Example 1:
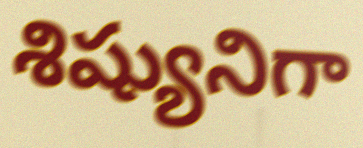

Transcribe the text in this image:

శిష్యునిగా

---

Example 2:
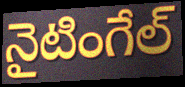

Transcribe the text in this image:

నైటింగేల్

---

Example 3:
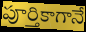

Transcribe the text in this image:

పూర్తికాగానే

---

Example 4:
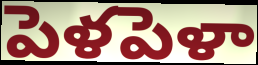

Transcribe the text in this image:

పెళపెళా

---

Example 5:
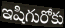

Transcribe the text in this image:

ఇషిగురోకు